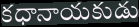
కధానాయకుడు